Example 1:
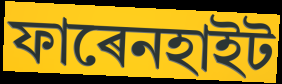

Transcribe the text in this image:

ফাৰেনহাইট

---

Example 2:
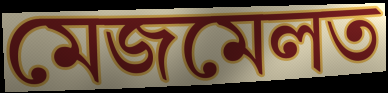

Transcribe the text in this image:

মেজমেলত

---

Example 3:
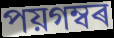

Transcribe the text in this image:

পয়গম্বৰ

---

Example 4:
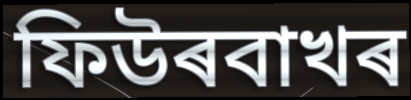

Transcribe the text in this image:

ফিউৰবাখৰ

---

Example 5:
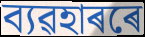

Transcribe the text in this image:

ব্যৱহাৰৰে